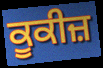
ਕੂਕੀਜ਼